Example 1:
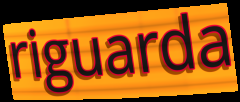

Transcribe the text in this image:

riguarda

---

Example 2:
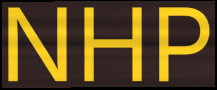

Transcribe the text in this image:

NHP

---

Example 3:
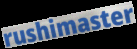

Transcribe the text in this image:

rushimaster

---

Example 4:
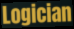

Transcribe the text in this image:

Logician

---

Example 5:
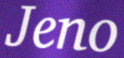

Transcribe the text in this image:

Jeno